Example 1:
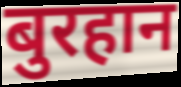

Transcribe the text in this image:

बुरहान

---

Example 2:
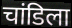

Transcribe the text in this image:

चांडिला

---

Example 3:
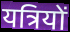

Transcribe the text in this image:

यत्रियों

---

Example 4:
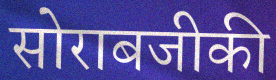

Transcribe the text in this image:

सोराबजीकी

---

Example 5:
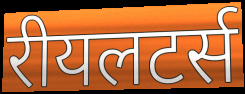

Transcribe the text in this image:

रीयलटर्स